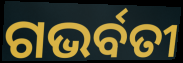
ଗଭର୍ବତୀ